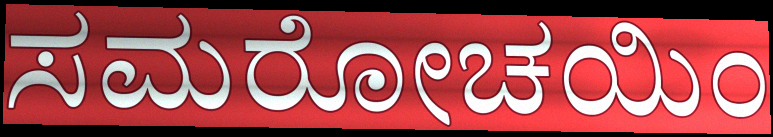
ಸಮರೋಚಯಿಂ